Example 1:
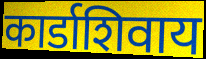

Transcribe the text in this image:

कार्डाशिवाय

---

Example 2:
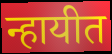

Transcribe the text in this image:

न्हायीत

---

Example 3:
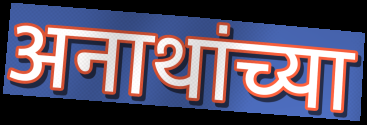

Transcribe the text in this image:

अनाथांच्या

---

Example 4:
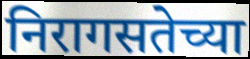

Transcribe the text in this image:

निरागसतेच्या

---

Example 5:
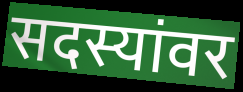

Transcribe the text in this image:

सदस्यांवर